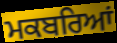
ਮਕਬਰਿਆਂ